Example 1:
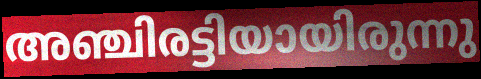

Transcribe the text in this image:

അഞ്ചിരട്ടിയായിരുന്നു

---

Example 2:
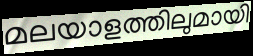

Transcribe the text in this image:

മലയാളത്തിലുമായി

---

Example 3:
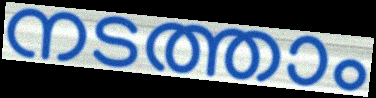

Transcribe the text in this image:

നടത്താം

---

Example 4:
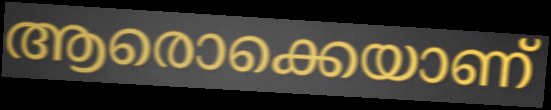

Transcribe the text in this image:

ആരൊക്കെയാണ്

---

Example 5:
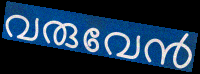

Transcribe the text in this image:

വരുവേൻ